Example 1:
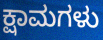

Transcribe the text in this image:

ಕ್ಷಾಮಗಳು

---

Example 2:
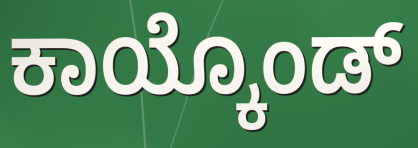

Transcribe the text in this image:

ಕಾಯ್ಕೊಂಡ್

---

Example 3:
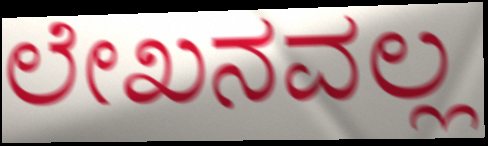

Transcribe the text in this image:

ಲೇಖನವಲ್ಲ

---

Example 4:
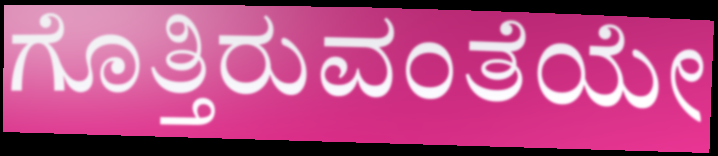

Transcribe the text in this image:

ಗೊತ್ತಿರುವಂತೆಯೇ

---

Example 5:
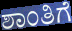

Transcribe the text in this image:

ಶಾಂತಿಗೆ